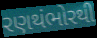
રણથંભોરથી